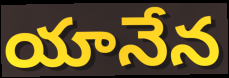
యానేన